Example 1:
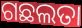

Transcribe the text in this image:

ଗଛଲତା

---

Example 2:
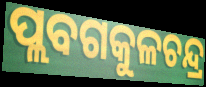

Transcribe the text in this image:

ପ୍ଲବଗକୁଳଚନ୍ଦ୍ର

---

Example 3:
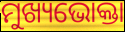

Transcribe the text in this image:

ମୁଖ୍ୟଭୋକ୍ତା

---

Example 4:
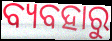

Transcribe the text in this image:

ବ୍ୟବହାରୁ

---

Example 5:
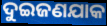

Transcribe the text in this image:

ଦୁଇଜଣଯାକ